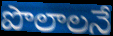
పొలాలనే